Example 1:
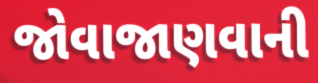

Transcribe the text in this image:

જોવાજાણવાની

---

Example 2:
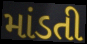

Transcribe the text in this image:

માંડતી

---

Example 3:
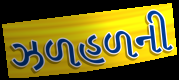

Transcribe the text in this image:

ઝળહળની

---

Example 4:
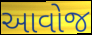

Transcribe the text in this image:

આવોજ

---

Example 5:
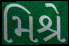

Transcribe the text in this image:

મિશ્રે